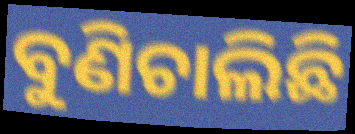
ବୁଣିଚାଲିଛି